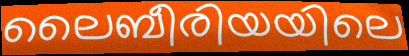
ലൈബീരിയയിലെ